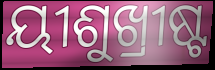
ୟୀଶୁଖ୍ରୀଷ୍ଟ